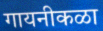
गायनीकळा